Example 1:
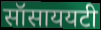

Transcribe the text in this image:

सॉसाययटी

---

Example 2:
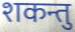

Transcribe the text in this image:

शकन्तु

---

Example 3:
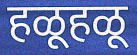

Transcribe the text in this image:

हळूहळू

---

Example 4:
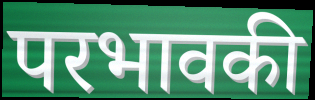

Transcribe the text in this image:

परभावकी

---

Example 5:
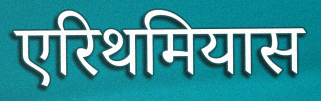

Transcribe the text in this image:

एरिथमियास